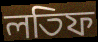
লতিফ